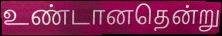
உண்டானதென்று